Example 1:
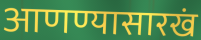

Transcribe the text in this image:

आणण्यासारखं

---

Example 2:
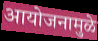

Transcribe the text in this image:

आयोजनामुळे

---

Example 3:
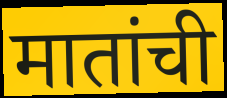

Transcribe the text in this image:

मातांची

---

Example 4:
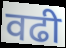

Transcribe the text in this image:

वढी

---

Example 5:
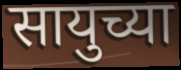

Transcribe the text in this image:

सायुच्या